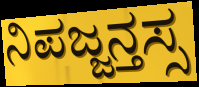
ನಿಪಜ್ಜನ್ತಸ್ಸ